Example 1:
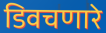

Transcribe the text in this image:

डिवचणारे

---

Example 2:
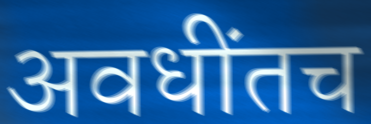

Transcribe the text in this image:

अवधींतच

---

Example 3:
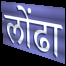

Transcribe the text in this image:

लोंढा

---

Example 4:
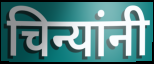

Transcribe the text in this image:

चिन्यांनी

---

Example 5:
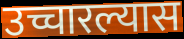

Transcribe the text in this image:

उच्चारल्यास